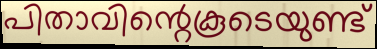
പിതാവിന്റെകൂടെയുണ്ട്